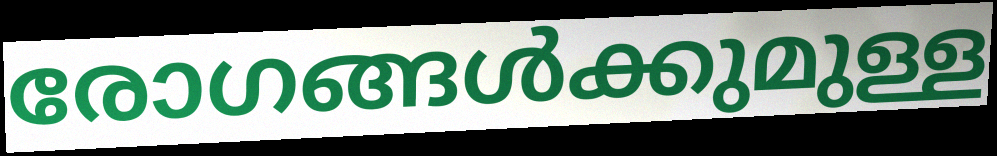
രോഗങ്ങൾക്കുമുള്ള